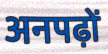
अनपढ़ों